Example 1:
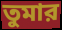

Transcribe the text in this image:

তুমার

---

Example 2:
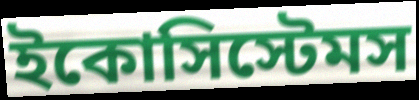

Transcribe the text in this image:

ইকোসিস্টেমস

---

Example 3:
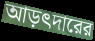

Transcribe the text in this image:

আড়ৎদারের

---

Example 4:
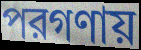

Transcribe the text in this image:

পরগণায়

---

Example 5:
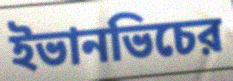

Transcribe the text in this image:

ইভানভিচের